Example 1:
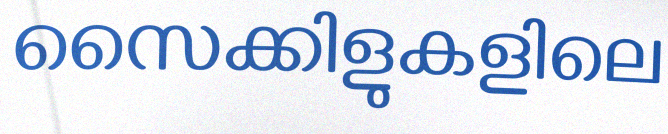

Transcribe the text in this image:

സൈക്കിളുകളിലെ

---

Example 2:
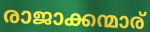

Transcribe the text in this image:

രാജാക്കന്മാര്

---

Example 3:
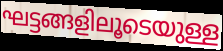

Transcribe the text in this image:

ഘട്ടങ്ങളിലൂടെയുള്ള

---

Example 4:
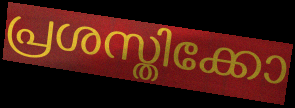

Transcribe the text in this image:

പ്രശസ്തിക്കോ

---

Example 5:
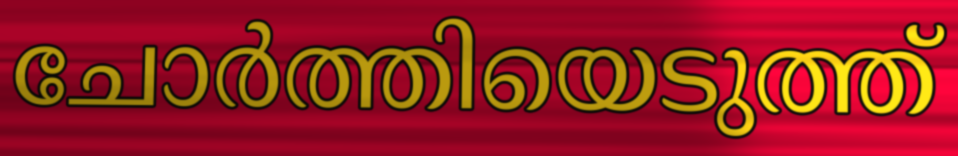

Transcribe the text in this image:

ചോർത്തിയെടുത്ത്